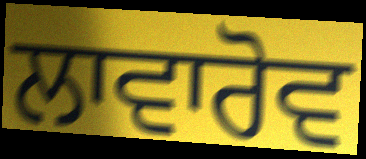
ਲਾਵਾਰੋਵ